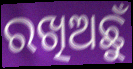
ରଖିଅଛୁଁ